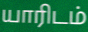
யாரிடம்